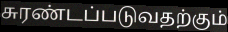
சுரண்டப்படுவதற்கும்